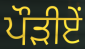
ਪੌੜੀਏਂ